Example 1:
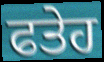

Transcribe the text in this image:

ਫਤੇਹ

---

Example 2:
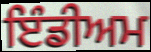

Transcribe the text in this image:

ਇੰਡੀਅਮ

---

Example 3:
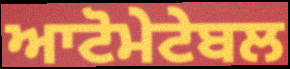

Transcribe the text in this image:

ਆਟੋਮੇਟੇਬਲ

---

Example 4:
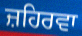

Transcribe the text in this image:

ਜ਼ਹਿਰਵਾ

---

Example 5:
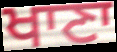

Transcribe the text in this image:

ਖਾਣਾ